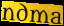
ndma